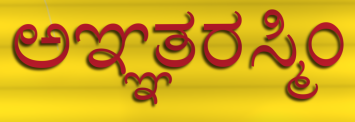
ಅಞ್ಞತರಸ್ಮಿಂ